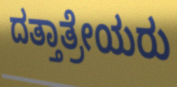
ದತ್ತಾತ್ರೇಯರು